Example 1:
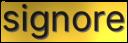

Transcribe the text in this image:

signore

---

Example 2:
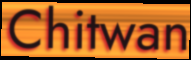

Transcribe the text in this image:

Chitwan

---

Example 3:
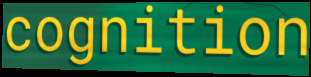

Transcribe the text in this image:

cognition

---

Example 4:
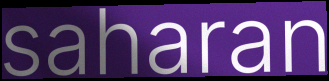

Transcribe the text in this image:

saharan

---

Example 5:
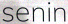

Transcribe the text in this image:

senin